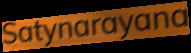
Satynarayana